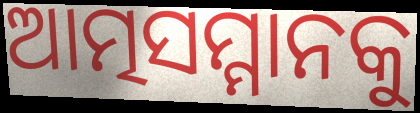
ଆତ୍ମସମ୍ମାନକୁ